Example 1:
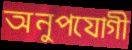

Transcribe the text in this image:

অনুপযোগী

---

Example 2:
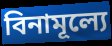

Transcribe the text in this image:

বিনামূল্যে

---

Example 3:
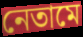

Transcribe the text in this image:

নেতামে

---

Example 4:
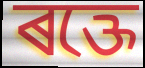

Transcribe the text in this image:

ৰক্তে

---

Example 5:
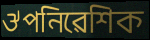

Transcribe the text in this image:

ঔপনিৱেশিক